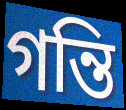
গন্তি